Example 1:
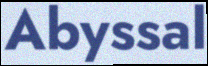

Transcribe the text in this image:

Abyssal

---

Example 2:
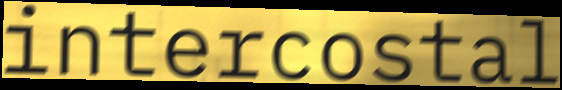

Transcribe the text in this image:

intercostal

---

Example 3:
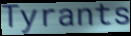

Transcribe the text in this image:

Tyrants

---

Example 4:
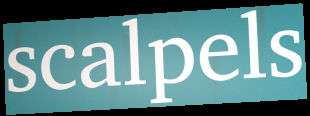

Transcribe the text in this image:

scalpels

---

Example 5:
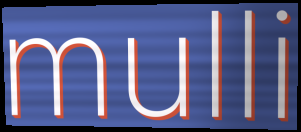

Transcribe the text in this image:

mulli